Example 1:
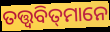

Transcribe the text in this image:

ତତ୍ତ୍ୱବିତ୍‌ମାନେ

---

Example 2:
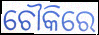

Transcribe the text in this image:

ଚୌକିରେ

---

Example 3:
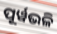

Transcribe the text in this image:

ପୂର୍ୱଭଳି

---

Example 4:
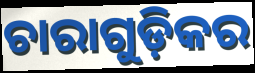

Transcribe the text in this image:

ଚାରାଗୁଡ଼ିକର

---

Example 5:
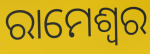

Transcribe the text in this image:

ରାମେଶ୍ୱର